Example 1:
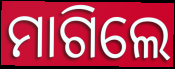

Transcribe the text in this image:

ମାଗିଲେ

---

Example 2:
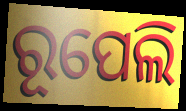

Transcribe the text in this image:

ରୂପେଲି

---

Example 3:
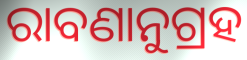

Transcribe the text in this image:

ରାବଣାନୁଗ୍ରହ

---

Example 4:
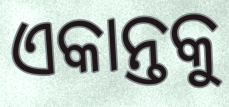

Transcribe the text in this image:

ଏକାନ୍ତକୁ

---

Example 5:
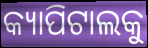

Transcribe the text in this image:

କ୍ୟାପିଟାଲକୁ